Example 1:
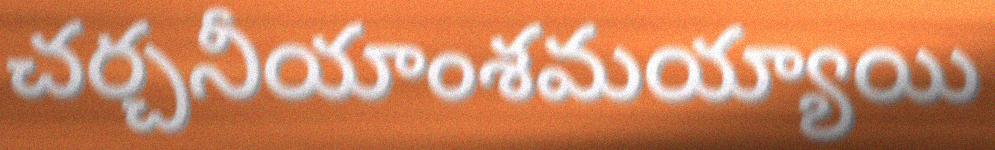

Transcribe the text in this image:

చర్చనీయాంశమయ్యాయి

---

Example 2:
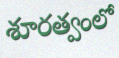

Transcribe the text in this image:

శూరత్వంలో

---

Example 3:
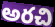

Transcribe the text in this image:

అరచి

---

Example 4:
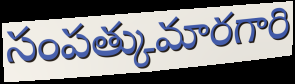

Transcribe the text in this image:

సంపత్కుమారగారి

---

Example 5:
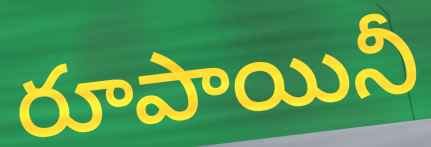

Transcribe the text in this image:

రూపాయినీ